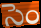
సెం